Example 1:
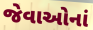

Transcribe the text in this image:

જેવાઓનાં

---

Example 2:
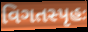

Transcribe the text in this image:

વિગતસ્પૃહઃ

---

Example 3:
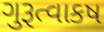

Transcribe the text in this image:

ગુરૂત્વાકષ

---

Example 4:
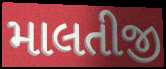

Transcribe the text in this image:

માલતીજી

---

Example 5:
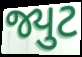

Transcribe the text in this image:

જ્યુટ